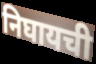
निघायची